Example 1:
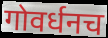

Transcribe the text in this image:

गोवर्धनच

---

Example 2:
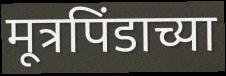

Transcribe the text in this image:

मूत्रपिंडाच्या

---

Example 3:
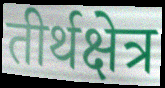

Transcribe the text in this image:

तीर्थक्षेत्र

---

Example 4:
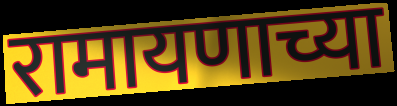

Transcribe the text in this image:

रामायणाच्या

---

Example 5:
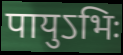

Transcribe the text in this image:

पायुऽभिः